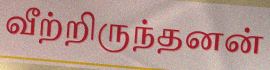
வீற்றிருந்தனன்